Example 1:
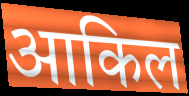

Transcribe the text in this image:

आकिल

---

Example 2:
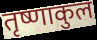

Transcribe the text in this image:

तृष्णाकुल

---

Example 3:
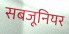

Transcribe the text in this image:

सबजूनियर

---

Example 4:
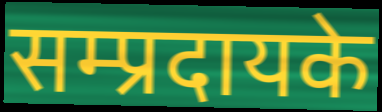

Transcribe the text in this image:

सम्प्रदायके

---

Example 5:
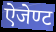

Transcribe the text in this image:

ऐजेण्ट